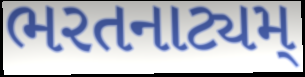
ભરતનાટ્યમ્